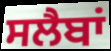
ਸਲੈਬਾਂ